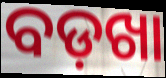
ବଡ଼ଖା